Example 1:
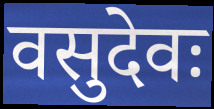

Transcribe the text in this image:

वसुदेवः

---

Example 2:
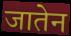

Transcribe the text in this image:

जातेन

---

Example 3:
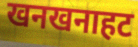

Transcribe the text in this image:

खनखनाहट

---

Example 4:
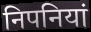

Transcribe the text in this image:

निपनियां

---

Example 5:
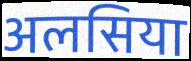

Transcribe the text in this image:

अलसिया